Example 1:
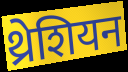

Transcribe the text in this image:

थ्रेशियन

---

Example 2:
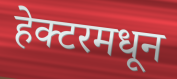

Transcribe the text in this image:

हेक्टरमधून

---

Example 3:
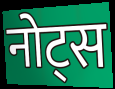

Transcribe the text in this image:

नोट्स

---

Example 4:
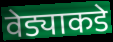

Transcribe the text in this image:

वेड्याकडे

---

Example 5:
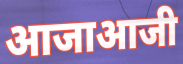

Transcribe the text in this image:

आजाआजी